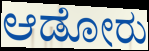
ಆಡೋರು